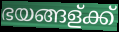
ഭയങ്ങള്ക്ക്